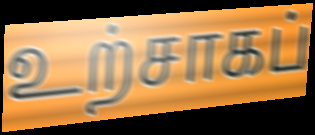
உற்சாகப்